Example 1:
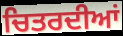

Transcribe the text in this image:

ਚਿਤਰਦੀਆਂ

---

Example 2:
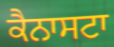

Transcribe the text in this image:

ਕੈਨਾਸਟਾ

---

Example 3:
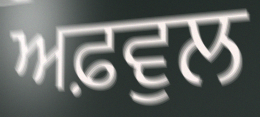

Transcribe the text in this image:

ਅਫ਼ਵੁਲ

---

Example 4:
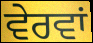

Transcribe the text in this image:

ਵੇਰਵਾਂ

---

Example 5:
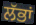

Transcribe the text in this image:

ਲੱਭਾਂ